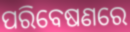
ପରିବେଷଣରେ